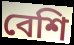
বেশি